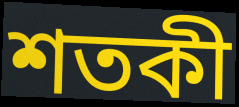
শতকী